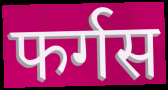
फर्गस